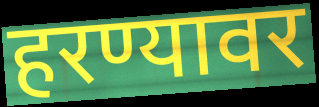
हरण्यावर